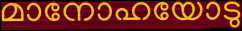
മാനോഹയോടു